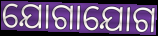
ଯୋଗାଯୋଗ